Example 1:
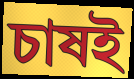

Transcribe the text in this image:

চাষই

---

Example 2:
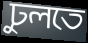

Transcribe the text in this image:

ঢুলতে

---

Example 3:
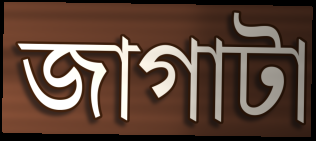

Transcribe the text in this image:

জাগাটা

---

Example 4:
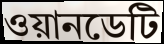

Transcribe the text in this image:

ওয়ানডেটি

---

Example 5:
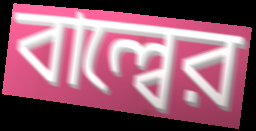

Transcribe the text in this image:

বাল্বের